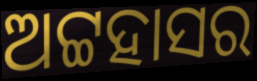
ଅଟ୍ଟହାସର